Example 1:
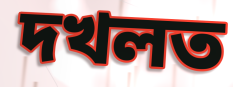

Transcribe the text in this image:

দখলত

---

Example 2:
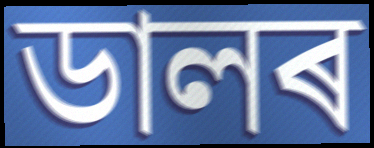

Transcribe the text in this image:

ডালৰ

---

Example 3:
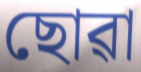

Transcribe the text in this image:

ছোৱা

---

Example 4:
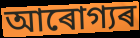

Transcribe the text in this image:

আৰোগ্যৰ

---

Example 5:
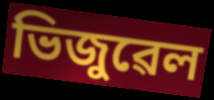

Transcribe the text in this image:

ভিজুৱেল